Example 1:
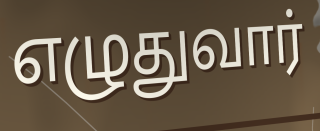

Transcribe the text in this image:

எழுதுவார்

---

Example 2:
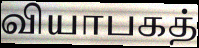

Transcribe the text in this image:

வியாபகத்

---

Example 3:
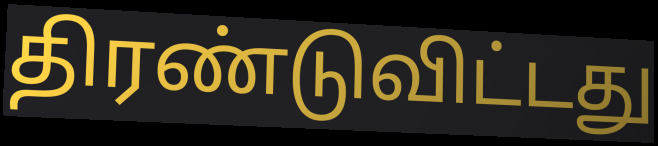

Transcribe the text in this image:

திரண்டுவிட்டது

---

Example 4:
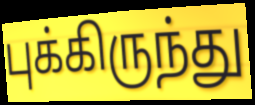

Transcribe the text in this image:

புக்கிருந்து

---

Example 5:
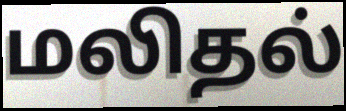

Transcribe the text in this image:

மலிதல்